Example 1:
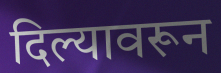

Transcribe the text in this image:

दिल्यावरून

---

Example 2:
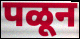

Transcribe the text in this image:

पळून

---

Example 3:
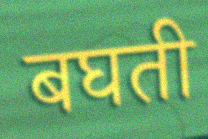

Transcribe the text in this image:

बघती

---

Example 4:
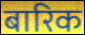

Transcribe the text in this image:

बारिक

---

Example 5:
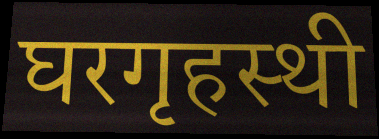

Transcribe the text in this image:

घरगृहस्थी